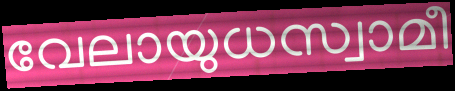
വേലായുധസ്വാമീ